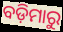
ବଡ଼ିମାରୁ